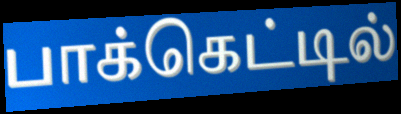
பாக்கெட்டில்